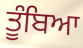
ਤੂੰਬਿਆ